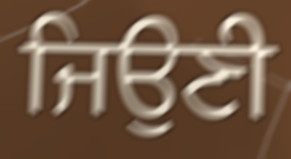
ਜਿਉਣੀ